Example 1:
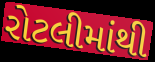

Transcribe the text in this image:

રોટલીમાંથી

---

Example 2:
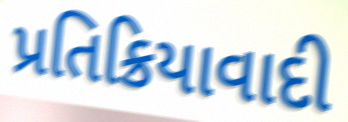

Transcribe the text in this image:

પ્રતિક્રિયાવાદી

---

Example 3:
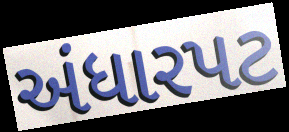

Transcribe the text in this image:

અંધારપટ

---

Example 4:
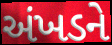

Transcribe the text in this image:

અંખડને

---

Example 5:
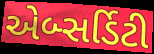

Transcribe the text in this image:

એબ્સર્ડિટી